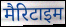
मैरिटाइम